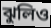
ঝুলিও